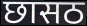
छासठ